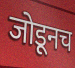
जोडूनच